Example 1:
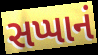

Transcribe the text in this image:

સપ્પાનં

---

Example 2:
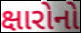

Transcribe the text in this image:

ક્ષારોનો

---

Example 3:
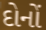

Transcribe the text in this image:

દોનોં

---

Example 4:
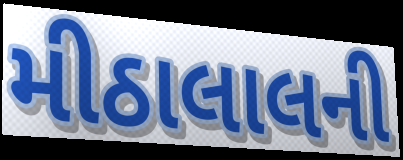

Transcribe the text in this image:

મીઠાલાલની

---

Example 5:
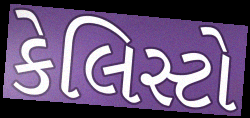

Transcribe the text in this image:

કેલિસ્ટો